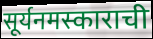
सूर्यनमस्काराची